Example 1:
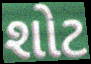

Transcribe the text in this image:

શોટ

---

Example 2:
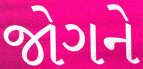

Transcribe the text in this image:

જોગને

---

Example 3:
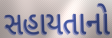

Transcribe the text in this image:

સહાયતાનો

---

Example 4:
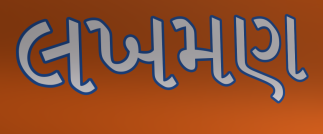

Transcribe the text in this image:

લખમણ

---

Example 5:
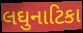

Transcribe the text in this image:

લઘુનાટિકા